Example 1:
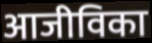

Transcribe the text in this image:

आजीविका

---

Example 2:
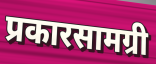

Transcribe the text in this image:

प्रकारसामग्री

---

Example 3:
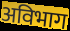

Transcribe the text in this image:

अविभाग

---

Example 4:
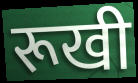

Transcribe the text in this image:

रूखी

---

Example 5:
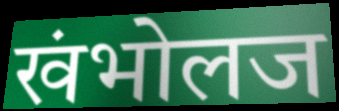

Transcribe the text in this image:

खंभोलज